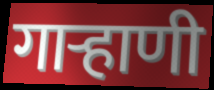
गार्‍हाणी